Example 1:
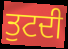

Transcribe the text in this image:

ਤੁਟਦੀ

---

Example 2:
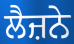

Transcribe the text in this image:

ਲੈਜ਼ਨੇ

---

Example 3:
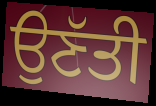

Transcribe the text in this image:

ਉਣੱਤੀ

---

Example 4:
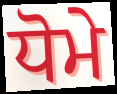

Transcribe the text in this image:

ਧੋਮੇ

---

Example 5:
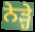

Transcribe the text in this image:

ਨੇੜ੍ਹੇ